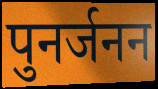
पुनर्जनन